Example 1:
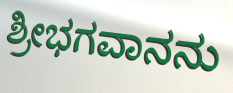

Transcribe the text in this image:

ಶ್ರೀಭಗವಾನನು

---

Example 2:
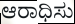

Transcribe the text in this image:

ಆರಾಧಿಸು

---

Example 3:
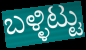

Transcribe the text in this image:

ಬಳ್ಳಿಟ್ಟು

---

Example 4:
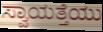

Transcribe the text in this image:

ಸ್ವಾಯತ್ತೆಯು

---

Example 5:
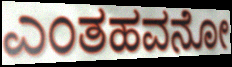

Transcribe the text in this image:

ಎಂತಹವನೋ